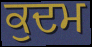
ਕੁਦਮ